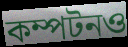
কম্পটনও